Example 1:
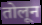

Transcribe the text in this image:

तोलून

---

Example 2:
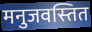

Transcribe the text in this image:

मनुजवस्तित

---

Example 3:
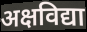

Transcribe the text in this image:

अक्षविद्या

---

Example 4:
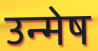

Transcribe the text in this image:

उन्मेष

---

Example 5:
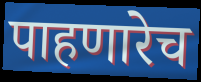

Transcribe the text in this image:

पाहणारेच